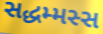
સદ્ધમ્મસ્સ